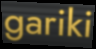
gariki